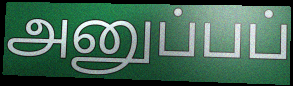
அனுப்பப்